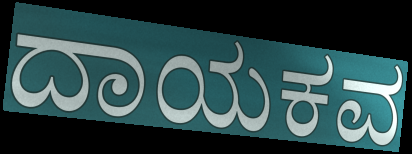
ದಾಯಕವ